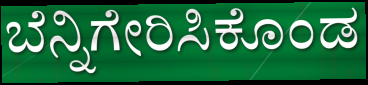
ಬೆನ್ನಿಗೇರಿಸಿಕೊಂಡ